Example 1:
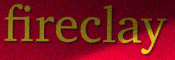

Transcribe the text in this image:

fireclay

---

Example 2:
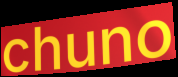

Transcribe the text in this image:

chuno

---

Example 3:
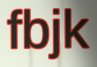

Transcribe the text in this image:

fbjk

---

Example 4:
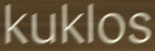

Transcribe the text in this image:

kuklos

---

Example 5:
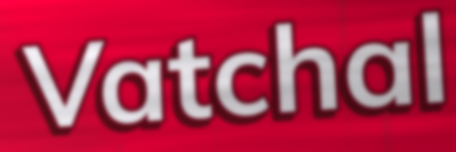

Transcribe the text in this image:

Vatchal